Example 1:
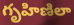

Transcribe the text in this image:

గృహిణిలా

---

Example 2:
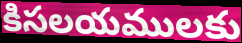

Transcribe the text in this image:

కిసలయములకు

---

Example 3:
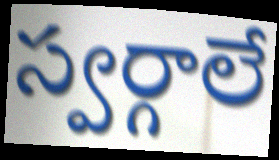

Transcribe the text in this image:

స్వర్గాలే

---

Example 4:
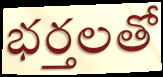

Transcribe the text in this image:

భర్తలతో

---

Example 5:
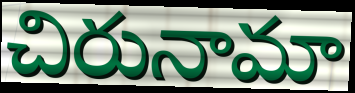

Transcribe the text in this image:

చిరునామా